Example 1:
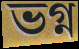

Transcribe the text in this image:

ভগ্ন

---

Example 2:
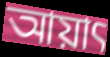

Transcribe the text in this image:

আয়াৎ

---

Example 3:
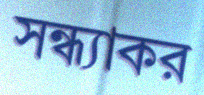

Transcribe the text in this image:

সন্ধ্যাকর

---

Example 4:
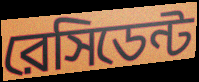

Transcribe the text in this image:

রেসিডেন্ট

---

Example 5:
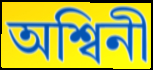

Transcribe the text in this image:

অশ্বিনী